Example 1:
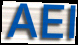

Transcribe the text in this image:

AEI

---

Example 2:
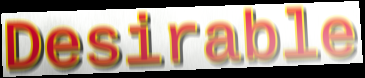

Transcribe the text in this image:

Desirable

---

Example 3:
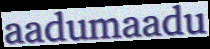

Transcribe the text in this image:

aadumaadu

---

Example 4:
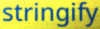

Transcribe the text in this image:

stringify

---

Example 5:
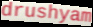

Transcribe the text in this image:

drushyam